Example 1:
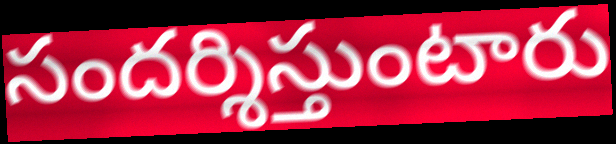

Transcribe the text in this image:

సందర్శిస్తుంటారు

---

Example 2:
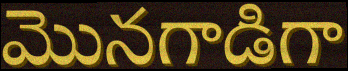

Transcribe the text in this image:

మొనగాడిగా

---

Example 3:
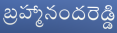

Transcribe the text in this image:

బ్రహ్మానందరెడ్డి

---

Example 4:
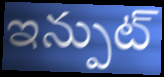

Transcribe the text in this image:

ఇన్పుట్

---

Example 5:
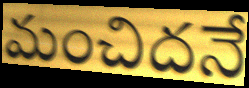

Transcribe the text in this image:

మంచిదనే